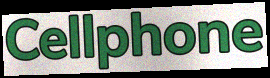
Cellphone